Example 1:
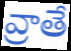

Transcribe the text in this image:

వ్రాతే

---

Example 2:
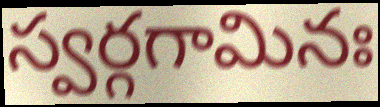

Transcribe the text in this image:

స్వర్గగామినః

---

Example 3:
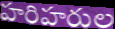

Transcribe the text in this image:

హరిహరుల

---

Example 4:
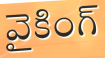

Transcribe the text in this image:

వైకింగ్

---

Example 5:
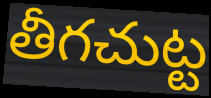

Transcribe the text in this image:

తీగచుట్ట